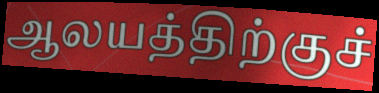
ஆலயத்திற்குச்